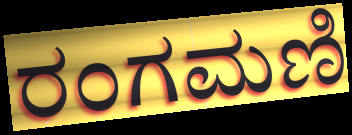
ರಂಗಮಣಿ